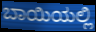
ಬಾಯಿಯಲ್ಲಿ